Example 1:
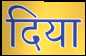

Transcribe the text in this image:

दिया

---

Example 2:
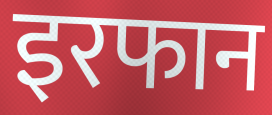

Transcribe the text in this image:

इरफान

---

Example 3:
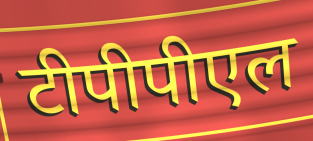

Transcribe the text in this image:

टीपीपीएल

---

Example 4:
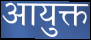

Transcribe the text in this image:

आयुक्त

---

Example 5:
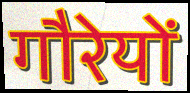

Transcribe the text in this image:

गौरेयों